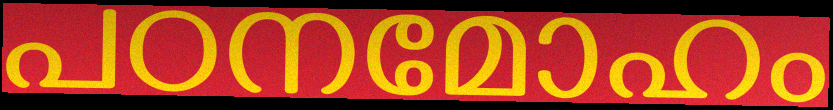
പഠനമോഹം